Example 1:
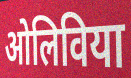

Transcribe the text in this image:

ओलिविया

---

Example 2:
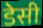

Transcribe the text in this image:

डेसी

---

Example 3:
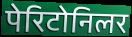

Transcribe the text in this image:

पेरिटोनिलर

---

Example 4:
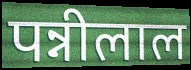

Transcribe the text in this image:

पन्नीलाल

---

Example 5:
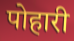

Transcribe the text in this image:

पोहारी